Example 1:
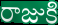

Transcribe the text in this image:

రాజుకి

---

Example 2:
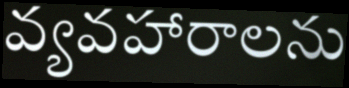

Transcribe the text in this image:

వ్యవహారాలను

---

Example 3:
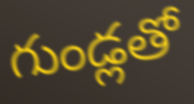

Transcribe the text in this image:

గుండ్లతో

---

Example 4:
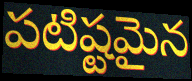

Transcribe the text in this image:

పటిష్టమైన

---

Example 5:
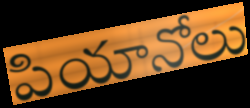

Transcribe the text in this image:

పియానోలు